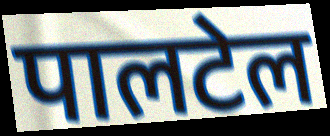
पालटेल